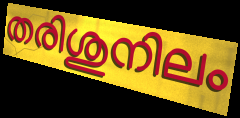
തരിശുനിലം